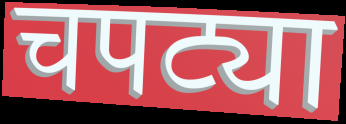
चपट्या